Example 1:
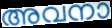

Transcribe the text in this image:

അവനാ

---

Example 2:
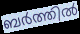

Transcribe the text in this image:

ബർത്തിൽ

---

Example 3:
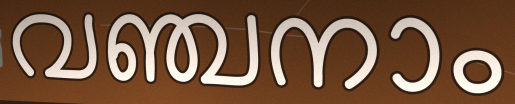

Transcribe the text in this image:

വഞ്ചനാം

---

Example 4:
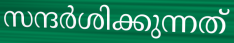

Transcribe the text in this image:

സന്ദർശിക്കുന്നത്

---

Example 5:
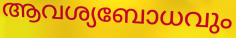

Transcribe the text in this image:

ആവശ്യബോധവും